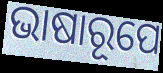
ଭାଷାରୂପେ